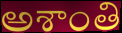
అశాంతి